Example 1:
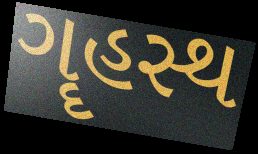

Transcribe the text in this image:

ગૄહસ્થ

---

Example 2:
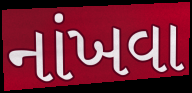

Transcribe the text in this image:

નાંખવા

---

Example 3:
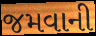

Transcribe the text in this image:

જમવાની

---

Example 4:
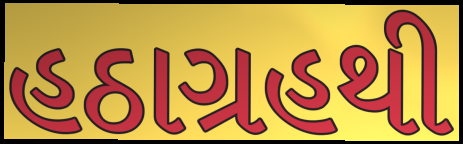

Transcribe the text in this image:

હઠાગ્રહથી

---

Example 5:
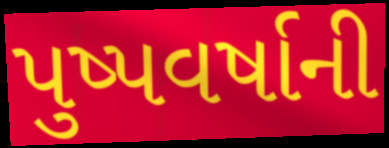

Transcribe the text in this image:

પુષ્પવર્ષાની